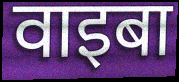
वाइबा